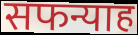
सफन्याह